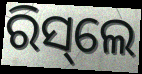
ରିସ୍‌ଲେ